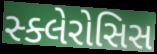
સ્ક્લેરોસિસ